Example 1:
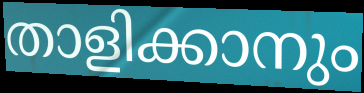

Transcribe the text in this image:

താളിക്കാനും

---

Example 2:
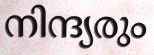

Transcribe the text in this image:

നിന്ദ്യരും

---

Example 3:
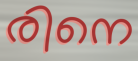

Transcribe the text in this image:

രിനെ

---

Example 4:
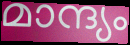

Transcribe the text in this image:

മാന്ദ്യം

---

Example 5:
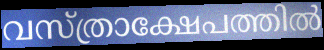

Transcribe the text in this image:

വസ്ത്രാക്ഷേപത്തിൽ